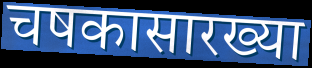
चषकासारख्या